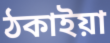
ঠকাইয়া